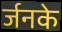
र्जनके